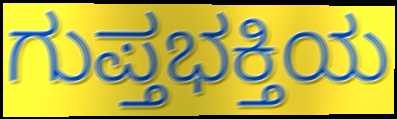
ಗುಪ್ತಭಕ್ತಿಯ